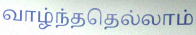
வாழ்ந்ததெல்லாம்